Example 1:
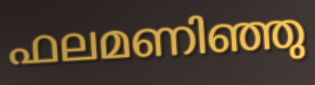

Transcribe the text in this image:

ഫലമണിഞ്ഞു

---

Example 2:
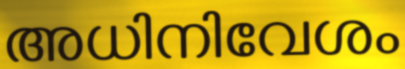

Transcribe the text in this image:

അധിനിവേശം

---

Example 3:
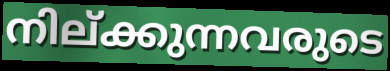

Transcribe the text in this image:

നില്ക്കുന്നവരുടെ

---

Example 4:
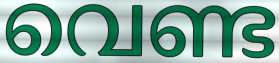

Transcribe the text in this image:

വെണ്ട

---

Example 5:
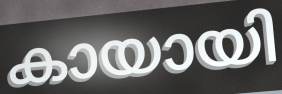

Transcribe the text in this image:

കായായി